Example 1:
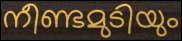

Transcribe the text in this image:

നീണ്ടമുടിയും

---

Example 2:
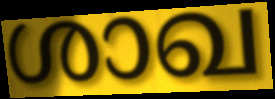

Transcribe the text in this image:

ശാഖ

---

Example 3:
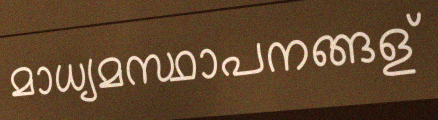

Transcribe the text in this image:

മാധ്യമസ്ഥാപനങ്ങള്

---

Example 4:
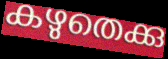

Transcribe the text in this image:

കഴുതെക്കു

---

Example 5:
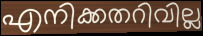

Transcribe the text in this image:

എനിക്കതറിവില്ല